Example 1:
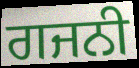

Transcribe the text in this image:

ਗਜਨੀ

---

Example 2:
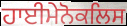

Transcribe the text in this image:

ਹਾਈਮੇਨੋਕਲਿਸ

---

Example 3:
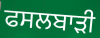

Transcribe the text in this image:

ਫਸਲਬਾੜੀ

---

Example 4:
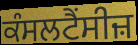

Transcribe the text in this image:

ਕੰਸਲਟੈਂਸੀਜ਼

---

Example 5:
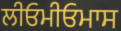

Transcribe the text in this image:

ਲੀਓਮੀਓਮਾਸ